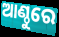
ଆଣ୍ଠୁରେ